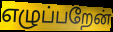
எழுப்பறேன்